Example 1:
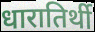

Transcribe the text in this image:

धारातिर्थी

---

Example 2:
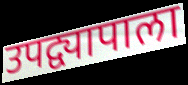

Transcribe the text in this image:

उपद्व्यापाला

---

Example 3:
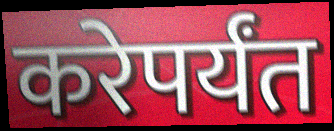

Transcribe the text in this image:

करेपर्यंत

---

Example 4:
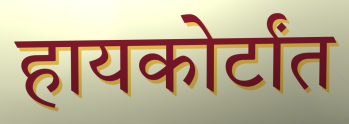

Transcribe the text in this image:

हायकोर्टांत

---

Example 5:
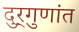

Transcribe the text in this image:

दुर्गुणांत